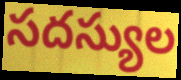
సదస్యుల